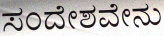
ಸಂದೇಶವೇನು